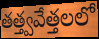
తత్త్వవేత్తలలో